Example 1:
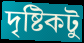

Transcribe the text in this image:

দৃষ্টিকটু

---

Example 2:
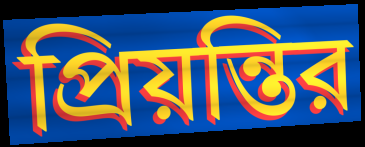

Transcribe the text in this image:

প্রিয়ন্তির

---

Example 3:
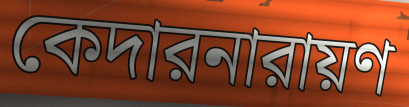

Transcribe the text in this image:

কেদারনারায়ণ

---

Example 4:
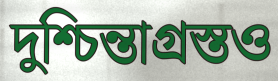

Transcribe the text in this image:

দুশ্চিন্তাগ্রস্তও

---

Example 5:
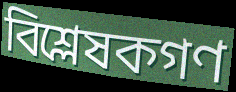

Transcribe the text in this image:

বিশ্লেষকগণ